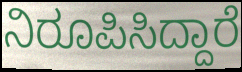
ನಿರೂಪಿಸಿದ್ದಾರೆ